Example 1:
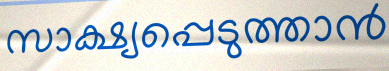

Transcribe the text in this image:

സാക്ഷ്യപ്പെടുത്താൻ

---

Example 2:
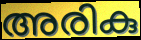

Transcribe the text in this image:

അരികു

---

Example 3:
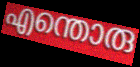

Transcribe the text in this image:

എന്തൊരു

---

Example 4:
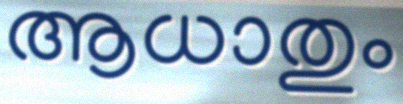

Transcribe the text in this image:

ആധാതും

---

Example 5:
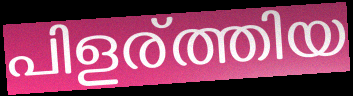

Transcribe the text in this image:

പിളര്ത്തിയ